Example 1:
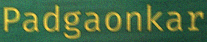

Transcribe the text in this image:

Padgaonkar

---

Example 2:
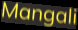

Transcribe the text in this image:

Mangali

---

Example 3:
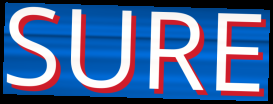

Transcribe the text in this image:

SURE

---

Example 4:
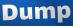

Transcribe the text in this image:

Dump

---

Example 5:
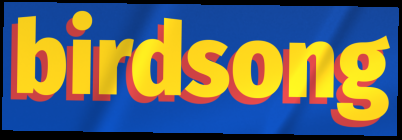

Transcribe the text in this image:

birdsong